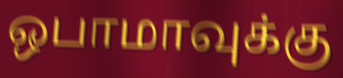
ஒபாமாவுக்கு